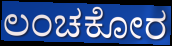
ಲಂಚಕೋರ